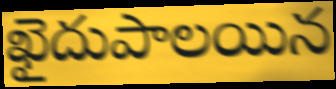
ఖైదుపాలయిన